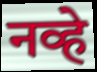
नव्हे